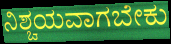
ನಿಶ್ಚಯವಾಗಬೇಕು